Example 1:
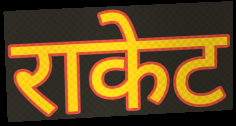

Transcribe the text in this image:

राकेट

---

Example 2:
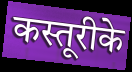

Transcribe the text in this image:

कस्तूरीके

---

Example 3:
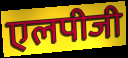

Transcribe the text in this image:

एलपीजी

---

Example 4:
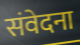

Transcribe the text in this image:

संवेदना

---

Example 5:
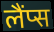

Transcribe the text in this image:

लैंप्स